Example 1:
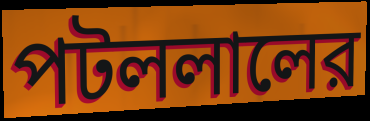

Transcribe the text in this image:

পটললালের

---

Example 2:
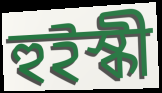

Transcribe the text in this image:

হুইস্কী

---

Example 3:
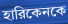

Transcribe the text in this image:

হারিকেনকে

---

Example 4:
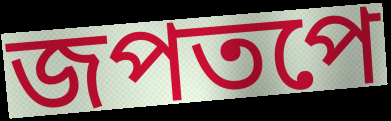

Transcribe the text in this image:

জপতপে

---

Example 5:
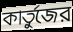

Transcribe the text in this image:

কার্তুজের